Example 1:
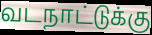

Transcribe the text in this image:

வடநாட்டுக்கு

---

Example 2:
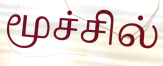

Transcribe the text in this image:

மூச்சில்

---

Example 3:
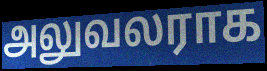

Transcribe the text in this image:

அலுவலராக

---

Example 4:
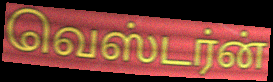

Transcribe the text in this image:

வெஸ்டர்ன்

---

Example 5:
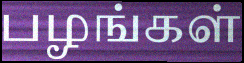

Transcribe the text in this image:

பழங்கள்